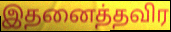
இதனைத்தவிர